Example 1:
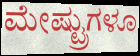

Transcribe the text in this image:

ಮೇಷ್ಟ್ರುಗಳೂ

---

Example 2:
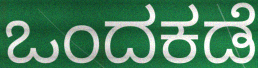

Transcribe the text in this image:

ಒಂದಕಡೆ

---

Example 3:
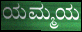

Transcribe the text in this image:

ಯಮ್ಮಯ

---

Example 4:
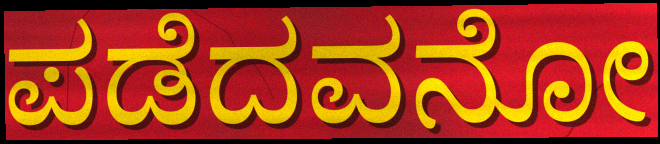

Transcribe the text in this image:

ಪಡೆದವನೋ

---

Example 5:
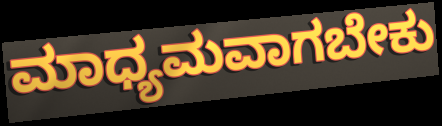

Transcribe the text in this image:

ಮಾಧ್ಯಮವಾಗಬೇಕು